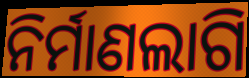
ନିର୍ମାଣଲାଗି